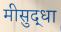
मीसुद्धा